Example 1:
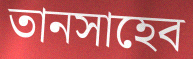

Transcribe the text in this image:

তানসাহেব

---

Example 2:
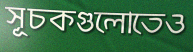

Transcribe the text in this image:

সূচকগুলোতেও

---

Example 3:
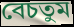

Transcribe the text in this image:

বেচতুম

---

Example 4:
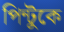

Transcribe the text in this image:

পিন্টুকে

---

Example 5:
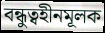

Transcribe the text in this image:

বন্ধুত্বহীনমূলক